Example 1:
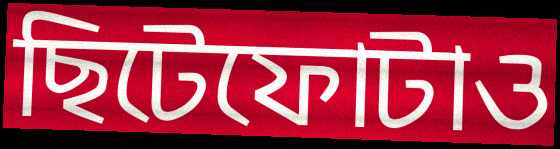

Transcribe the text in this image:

ছিটেফোটাও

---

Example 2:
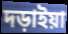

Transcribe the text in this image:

দড়াইয়া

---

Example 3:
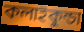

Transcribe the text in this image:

কলাইকুন্ডা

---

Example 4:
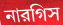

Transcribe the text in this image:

নারগিস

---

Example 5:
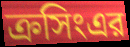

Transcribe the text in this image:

ক্রসিংএর